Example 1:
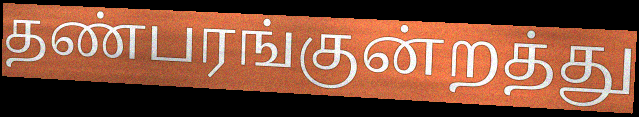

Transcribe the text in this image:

தண்பரங்குன்றத்து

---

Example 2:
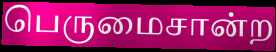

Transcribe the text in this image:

பெருமைசான்ற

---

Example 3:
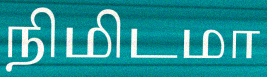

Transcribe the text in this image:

நிமிடமா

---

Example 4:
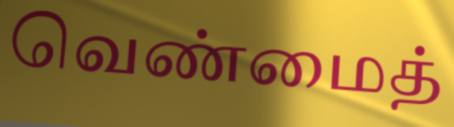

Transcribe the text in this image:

வெண்மைத்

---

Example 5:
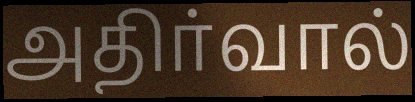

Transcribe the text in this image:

அதிர்வால்